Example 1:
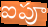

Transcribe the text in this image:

ఐపూ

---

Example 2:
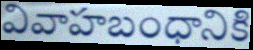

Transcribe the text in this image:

వివాహబంధానికి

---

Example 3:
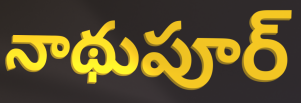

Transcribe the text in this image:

నాథుపూర్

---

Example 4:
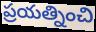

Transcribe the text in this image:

ప్రయత్నించి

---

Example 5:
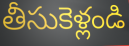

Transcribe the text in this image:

తీసుకెళ్లండి